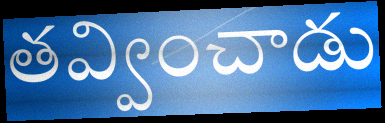
తవ్వించాడు